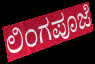
ಲಿಂಗಪೂಜೆ